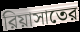
রিয়াসাতের